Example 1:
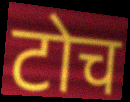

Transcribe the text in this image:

टोच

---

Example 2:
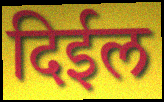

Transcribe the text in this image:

दिईल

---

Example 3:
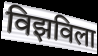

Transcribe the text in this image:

विझविला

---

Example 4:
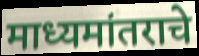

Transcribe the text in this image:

माध्यमांतराचे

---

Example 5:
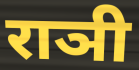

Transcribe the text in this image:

राञी